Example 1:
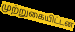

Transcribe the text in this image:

முற்றுகையிட்டன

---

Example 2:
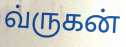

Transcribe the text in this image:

வ்ருகன்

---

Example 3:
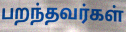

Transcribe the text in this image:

பறந்தவர்கள்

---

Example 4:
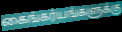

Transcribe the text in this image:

கைங்கர்யங்களுக்கு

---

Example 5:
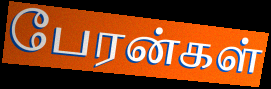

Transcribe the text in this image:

பேரன்கள்